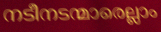
നടീനടന്മാരെല്ലാം